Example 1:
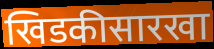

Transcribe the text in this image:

खिडकीसारखा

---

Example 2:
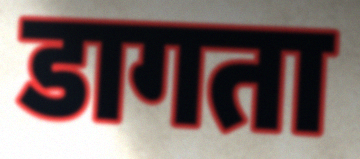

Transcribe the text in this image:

डागता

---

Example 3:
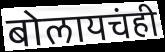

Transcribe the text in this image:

बोलायचंही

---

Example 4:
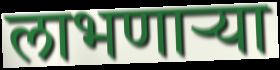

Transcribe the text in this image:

लाभणार्‍या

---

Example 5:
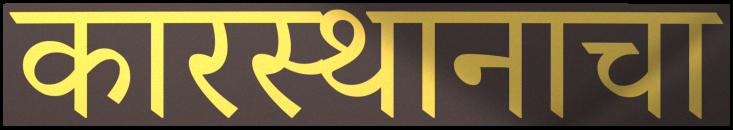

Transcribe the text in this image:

कारस्थानाचा